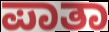
ಪಾತಾ